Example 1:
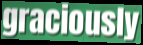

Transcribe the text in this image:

graciously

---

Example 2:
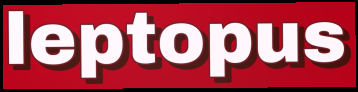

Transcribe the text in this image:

leptopus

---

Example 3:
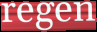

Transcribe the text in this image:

regen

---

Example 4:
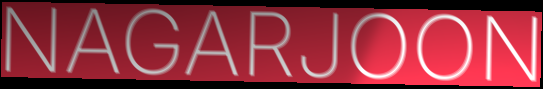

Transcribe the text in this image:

NAGARJOON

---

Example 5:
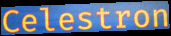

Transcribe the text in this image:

Celestron